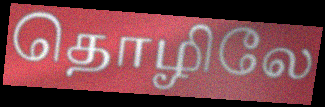
தொழிலே